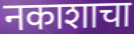
नकाशाचा